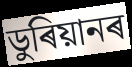
ডুৰিয়ানৰ